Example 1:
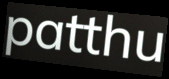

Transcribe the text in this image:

patthu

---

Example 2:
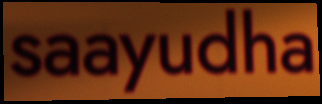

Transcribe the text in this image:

saayudha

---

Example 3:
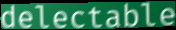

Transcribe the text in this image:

delectable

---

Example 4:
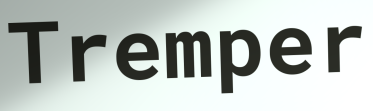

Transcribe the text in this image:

Tremper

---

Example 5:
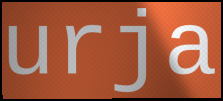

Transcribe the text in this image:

urja